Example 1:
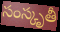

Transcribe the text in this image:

సంస్కృతీ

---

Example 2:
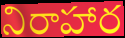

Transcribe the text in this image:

నిరాహార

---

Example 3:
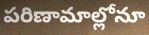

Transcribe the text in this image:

పరిణామాల్లోనూ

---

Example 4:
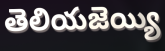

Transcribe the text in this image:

తెలియజెయ్యి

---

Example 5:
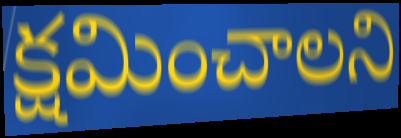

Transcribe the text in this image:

క్షమించాలని